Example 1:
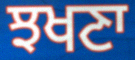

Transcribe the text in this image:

ਝਖਣਾ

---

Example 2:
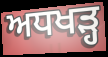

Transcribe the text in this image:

ਅਧਖੜ੍ਹ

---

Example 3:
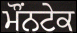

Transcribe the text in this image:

ਮੌਂਨਟੇਕ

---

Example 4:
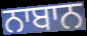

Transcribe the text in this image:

ਨਾਬਾਨ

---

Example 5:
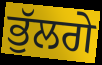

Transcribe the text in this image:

ਭੁੱਲਗੇ